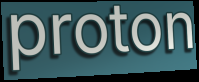
proton